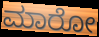
ಮಾರೋ